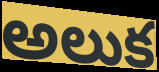
అలుక